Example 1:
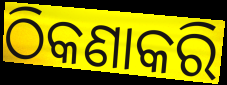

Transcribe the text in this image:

ଠିକଣାକରି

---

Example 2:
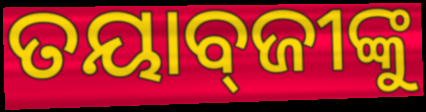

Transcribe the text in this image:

ତୟାବ୍‌ଜୀଙ୍କୁ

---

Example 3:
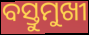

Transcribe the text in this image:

ବସ୍ତୁମୁଖୀ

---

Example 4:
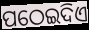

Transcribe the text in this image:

ପଠେଇଦିଏ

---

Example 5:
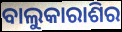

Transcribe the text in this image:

ବାଲୁକାରାଶିର